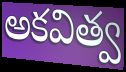
అకవిత్వ